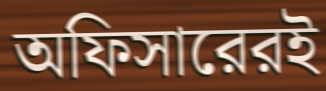
অফিসারেরই